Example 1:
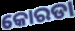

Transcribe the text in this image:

କୋରଡା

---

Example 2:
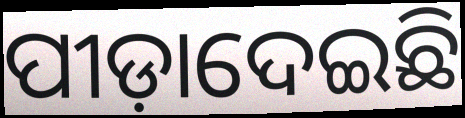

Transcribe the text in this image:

ପୀଡ଼ାଦେଇଛି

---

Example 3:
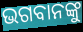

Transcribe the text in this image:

ଭଗବାନଙ୍କୁ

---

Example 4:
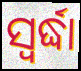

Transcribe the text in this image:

ସ୍ଵର୍ଦ୍ଧା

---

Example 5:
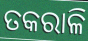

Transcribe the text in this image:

ତକରାଳି